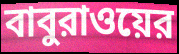
বাবুরাওয়ের